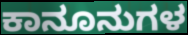
ಕಾನೂನುಗಳ